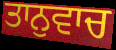
ਤਾਨੁਵਾਚ